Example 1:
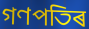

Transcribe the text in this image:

গণপতিৰ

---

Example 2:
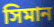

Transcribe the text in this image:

সিমান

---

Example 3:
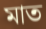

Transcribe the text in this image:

মাত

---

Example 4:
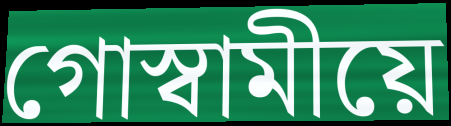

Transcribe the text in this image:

গোস্বামীয়ে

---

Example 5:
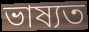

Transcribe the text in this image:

ভাষ্যত